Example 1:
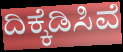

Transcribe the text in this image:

ದಿಕ್ಕೆಡಿಸಿವೆ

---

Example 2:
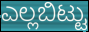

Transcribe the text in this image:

ಎಲ್ಲಬಿಟ್ಟು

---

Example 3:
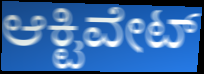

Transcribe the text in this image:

ಆಕ್ಟಿವೇಟ್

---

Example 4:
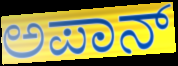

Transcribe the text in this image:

ಅಪಾನ್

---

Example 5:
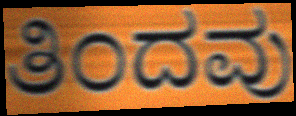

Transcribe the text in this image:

ತಿಂದವು